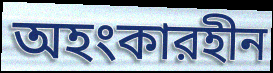
অহংকারহীন